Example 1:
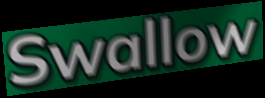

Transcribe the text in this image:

Swallow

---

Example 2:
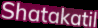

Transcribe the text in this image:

Shatakatil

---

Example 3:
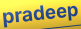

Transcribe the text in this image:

pradeep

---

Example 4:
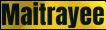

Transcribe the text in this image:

Maitrayee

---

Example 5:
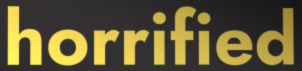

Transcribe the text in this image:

horrified